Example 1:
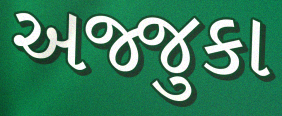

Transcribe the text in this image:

અજ્જુકા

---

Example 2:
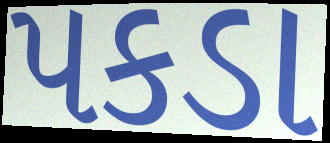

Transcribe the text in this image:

પકડા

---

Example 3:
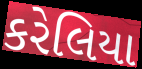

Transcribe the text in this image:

કરેલિયા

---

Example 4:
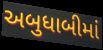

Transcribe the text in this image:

અબુધાબીમાં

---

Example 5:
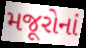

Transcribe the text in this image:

મજૂરોનાં